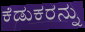
ಕೆಡುಕರನ್ನು